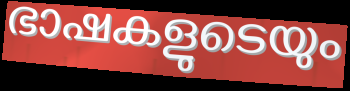
ഭാഷകളുടെയും